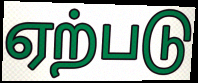
ஏற்படு